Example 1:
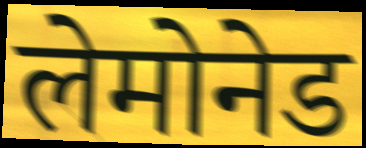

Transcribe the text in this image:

लेमोनेड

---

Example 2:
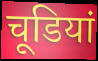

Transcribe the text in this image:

चूडियां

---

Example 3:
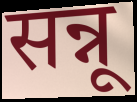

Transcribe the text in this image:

सन्नू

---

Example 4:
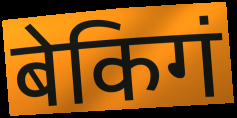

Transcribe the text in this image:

बेकिगं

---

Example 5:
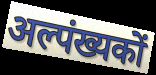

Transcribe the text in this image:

अल्पंख्यकों